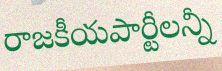
రాజకీయపార్టీలన్నీ